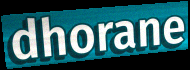
dhorane